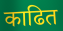
काढित